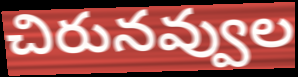
చిరునవ్వుల